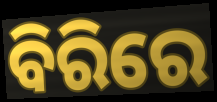
ବିରିରେ